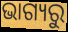
ଭାଗ୍ୟରୁ